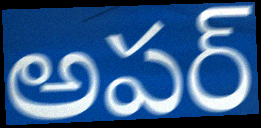
అపర్